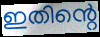
ഇതിന്റെ